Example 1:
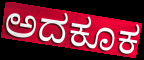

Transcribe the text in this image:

ಅದಕೂಕ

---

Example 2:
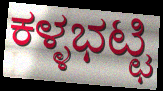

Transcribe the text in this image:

ಕಳ್ಳಭಟ್ಟಿ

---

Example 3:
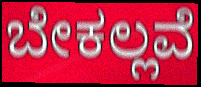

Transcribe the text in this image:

ಬೇಕಲ್ಲವೆ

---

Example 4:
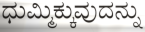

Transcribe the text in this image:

ಧುಮ್ಮಿಕ್ಕುವುದನ್ನು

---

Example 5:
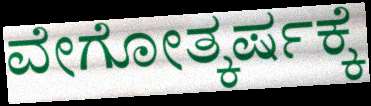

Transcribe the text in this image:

ವೇಗೋತ್ಕರ್ಷಕ್ಕೆ